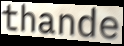
thande